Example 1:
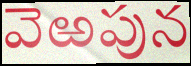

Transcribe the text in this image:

వెఱపున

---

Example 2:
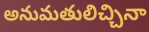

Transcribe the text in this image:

అనుమతులిచ్చినా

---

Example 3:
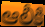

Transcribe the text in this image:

ఆలీకి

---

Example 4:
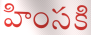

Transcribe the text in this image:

హింసకి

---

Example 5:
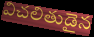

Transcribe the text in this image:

విచలితుడైన